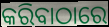
କରିବାଠାରେ